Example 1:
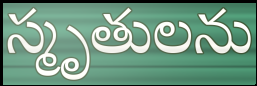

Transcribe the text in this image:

స్మృతులను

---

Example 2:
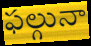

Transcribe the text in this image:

ఫల్గునా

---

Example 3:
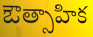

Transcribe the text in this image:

ఔత్సాహిక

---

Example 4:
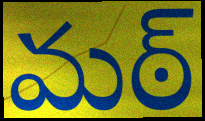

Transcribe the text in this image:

మఠ్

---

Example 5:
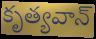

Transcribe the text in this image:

కృత్యవాన్